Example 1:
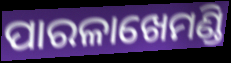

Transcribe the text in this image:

ପାରଳାଖେମଣ୍ଡି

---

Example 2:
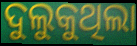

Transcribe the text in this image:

ଦୁଲୁକୁଥିଲା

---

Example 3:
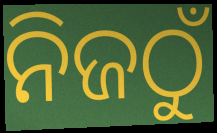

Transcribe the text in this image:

ନିଜଠୁଁ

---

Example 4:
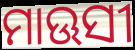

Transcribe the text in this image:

ମାଊସୀ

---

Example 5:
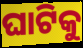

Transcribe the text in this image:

ଘାଟିକୁ